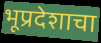
भूप्रदेशाचा